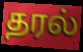
தரல்